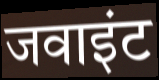
जवाइंट